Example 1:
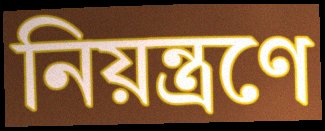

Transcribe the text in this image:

নিয়ন্ত্রণে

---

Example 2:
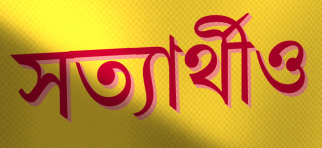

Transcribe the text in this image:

সত্যার্থীও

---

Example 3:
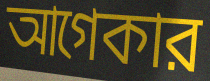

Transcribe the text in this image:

আগেকার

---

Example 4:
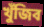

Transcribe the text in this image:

খুঁজিব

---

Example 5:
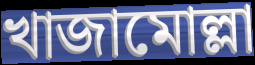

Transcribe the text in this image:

খাজামোল্লা